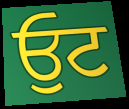
ਓੁਟ